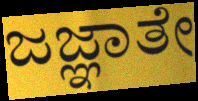
ಜಜ್ಞಾತೇ